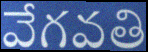
వేగవతి